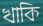
খাকি